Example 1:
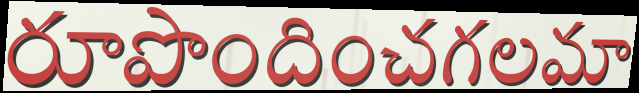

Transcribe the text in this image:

రూపొందించగలమా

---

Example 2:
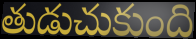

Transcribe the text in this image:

తుడుచుకుంది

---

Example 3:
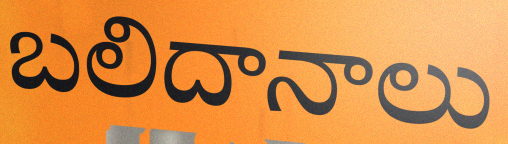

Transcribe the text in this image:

బలిదానాలు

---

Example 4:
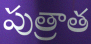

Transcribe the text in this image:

పుత్రాత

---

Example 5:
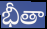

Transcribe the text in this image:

భీతా